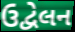
ઉદ્વેલન